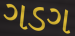
ગડગ